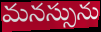
మనస్సును